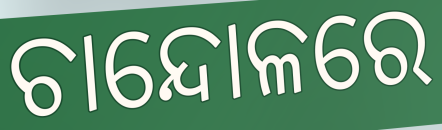
ଚାନ୍ଦୋଳରେ